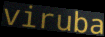
viruba